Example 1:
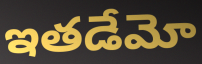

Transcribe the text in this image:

ఇతడేమో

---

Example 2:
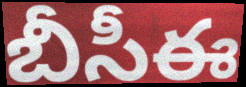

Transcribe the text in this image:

బీసీఈ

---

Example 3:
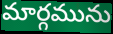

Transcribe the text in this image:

మార్గమును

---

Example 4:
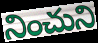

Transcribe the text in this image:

నించుని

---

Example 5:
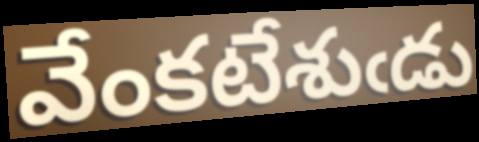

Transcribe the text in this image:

వేంకటేశుఁడు